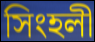
সিংহলী